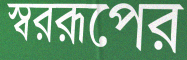
স্বররূপের